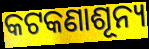
କଟକଣାଶୂନ୍ୟ